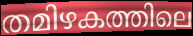
തമിഴകത്തിലെ